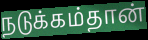
நடுக்கம்தான்